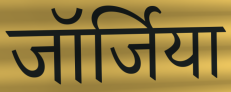
जॉर्जिया